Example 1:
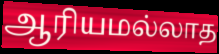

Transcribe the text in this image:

ஆரியமல்லாத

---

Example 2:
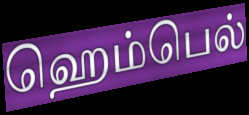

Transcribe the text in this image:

ஹெம்பெல்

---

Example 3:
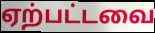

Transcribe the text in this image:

ஏற்பட்டவை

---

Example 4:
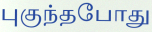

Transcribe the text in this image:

புகுந்தபோது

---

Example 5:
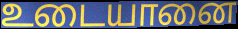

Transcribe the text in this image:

உடையானை